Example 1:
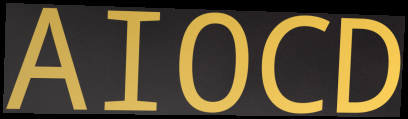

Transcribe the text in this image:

AIOCD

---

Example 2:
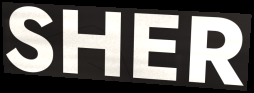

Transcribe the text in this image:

SHER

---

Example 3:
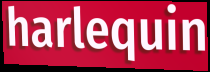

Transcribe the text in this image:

harlequin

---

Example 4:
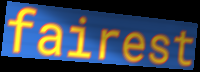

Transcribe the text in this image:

fairest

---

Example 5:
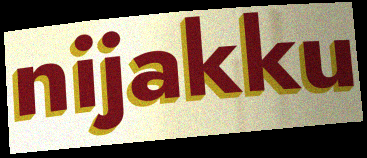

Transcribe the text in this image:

nijakku